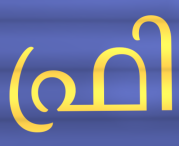
ഫ്രി